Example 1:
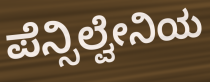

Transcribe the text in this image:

ಪೆನ್ಸಿಲ್ವೇನಿಯ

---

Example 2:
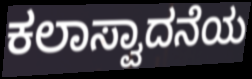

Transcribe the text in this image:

ಕಲಾಸ್ವಾದನೆಯ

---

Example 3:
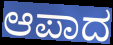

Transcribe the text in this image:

ಆಪಾದ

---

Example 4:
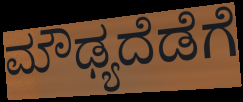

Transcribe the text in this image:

ಮೌಢ್ಯದೆಡೆಗೆ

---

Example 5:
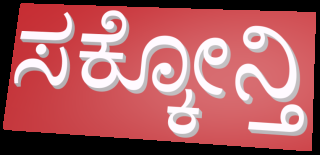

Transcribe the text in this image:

ಸಕ್ಕೋನ್ತಿ